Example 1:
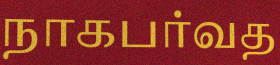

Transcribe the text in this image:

நாகபர்வத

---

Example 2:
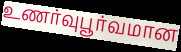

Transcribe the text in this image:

உணர்வுபூர்வமான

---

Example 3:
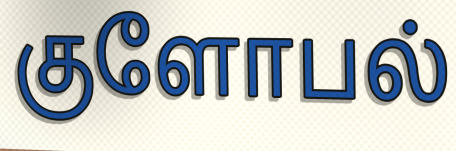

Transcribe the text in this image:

குளோபல்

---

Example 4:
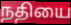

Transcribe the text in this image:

நதியை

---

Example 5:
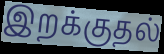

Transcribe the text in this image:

இறக்குதல்